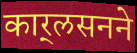
कार्लसनने